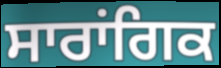
ਸਾਰਾਂਗਿਕ